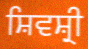
ਸ਼ਿਵਸ਼੍ਰੀ